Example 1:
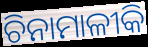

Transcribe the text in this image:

ଚିନାମାଳୀକି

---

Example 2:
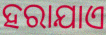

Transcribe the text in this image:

ହରାଯାଏ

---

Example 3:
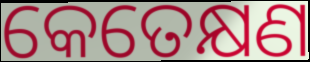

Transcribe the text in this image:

କେତେକ୍ଷଣ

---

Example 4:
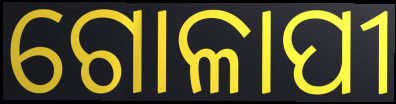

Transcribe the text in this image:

ଗୋଳାପୀ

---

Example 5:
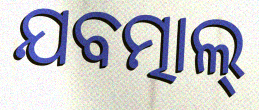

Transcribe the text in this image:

ଯବତ୍ମାଲ୍